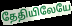
தேதியிலேயே